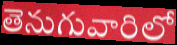
తెనుగువారిలో